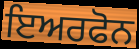
ਇਅਰਫੋਨ